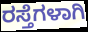
ರಸ್ತೆಗಳಾಗಿ